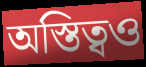
অস্তিত্বও